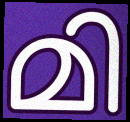
മി